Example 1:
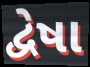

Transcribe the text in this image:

દ્વેષા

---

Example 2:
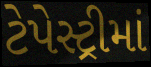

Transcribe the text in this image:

ટેપેસ્ટ્રીમાં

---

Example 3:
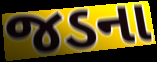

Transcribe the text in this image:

જડના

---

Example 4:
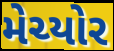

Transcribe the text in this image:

મેચ્યોર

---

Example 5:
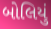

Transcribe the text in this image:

બોલિયું